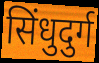
सिंधुदुर्ग